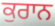
ਕੁਰਾਨ